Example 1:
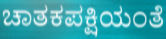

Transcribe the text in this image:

ಚಾತಕಪಕ್ಷಿಯಂತೆ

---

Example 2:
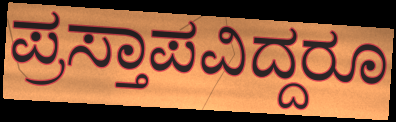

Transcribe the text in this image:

ಪ್ರಸ್ತಾಪವಿದ್ದರೂ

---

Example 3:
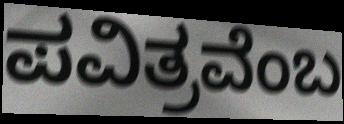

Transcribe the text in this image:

ಪವಿತ್ರವೆಂಬ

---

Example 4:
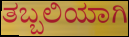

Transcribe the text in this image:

ತಬ್ಬಲಿಯಾಗಿ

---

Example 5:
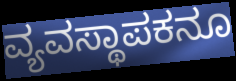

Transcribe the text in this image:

ವ್ಯವಸ್ಥಾಪಕನೂ